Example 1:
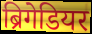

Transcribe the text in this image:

ब्रिगेडियर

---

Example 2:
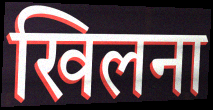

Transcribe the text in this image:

खिलना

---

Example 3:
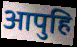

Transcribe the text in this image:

आपुहि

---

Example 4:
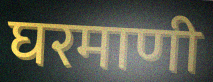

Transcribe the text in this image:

घरमाणी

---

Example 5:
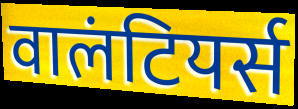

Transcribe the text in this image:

वालंटियर्स